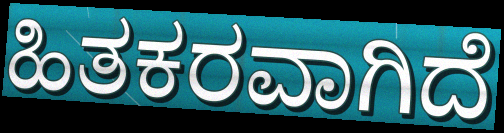
ಹಿತಕರವಾಗಿದೆ